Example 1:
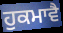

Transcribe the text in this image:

ਹੁਕਮਾਵੈ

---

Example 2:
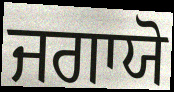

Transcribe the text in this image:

ਜਗਾਯੋ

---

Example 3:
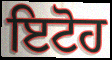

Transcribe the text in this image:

ਇਟੋਹ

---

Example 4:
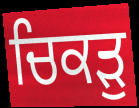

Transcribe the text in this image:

ਚਿਕੜੁ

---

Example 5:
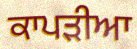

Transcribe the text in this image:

ਕਾਪੜੀਆ